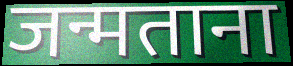
जन्मताना